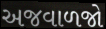
અજવાળજો